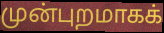
முன்புறமாகக்